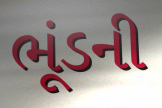
ભૂંડની